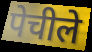
पेचीले